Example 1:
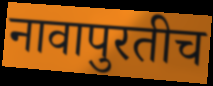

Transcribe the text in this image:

नावापुरतीच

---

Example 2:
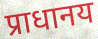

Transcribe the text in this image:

प्राधानय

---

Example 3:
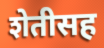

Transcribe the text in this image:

शेतीसह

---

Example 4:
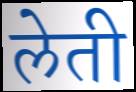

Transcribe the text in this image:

लेती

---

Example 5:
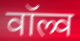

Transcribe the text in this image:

वॉल्व